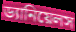
ড্যানিয়েলস